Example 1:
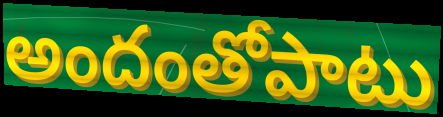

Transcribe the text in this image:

అందంతోపాటు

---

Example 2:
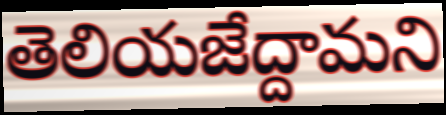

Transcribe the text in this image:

తెలియజేద్దామని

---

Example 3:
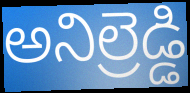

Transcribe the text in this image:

అనిల్రెడ్డి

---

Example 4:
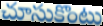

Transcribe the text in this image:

చూసుకొంటు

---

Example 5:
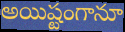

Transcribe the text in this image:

అయిష్టంగానూ